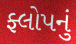
ફ્લોપનું